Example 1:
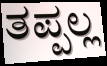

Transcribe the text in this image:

ತಪ್ಪಲ್ಲ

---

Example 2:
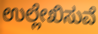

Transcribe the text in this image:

ಉಲ್ಲೇಖಿಸುವೆ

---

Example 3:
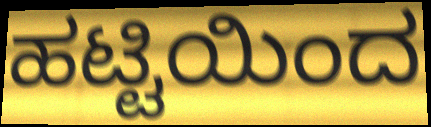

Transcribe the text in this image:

ಹಟ್ಟಿಯಿಂದ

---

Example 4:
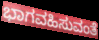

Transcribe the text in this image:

ಭಾಗವಹಿಸುವಂತೆ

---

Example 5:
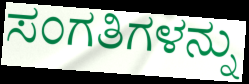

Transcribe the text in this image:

ಸಂಗತಿಗಳನ್ನು